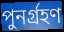
পুনর্গ্রহণ